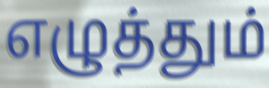
எழுத்தும்